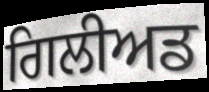
ਗਿਲੀਅਡ